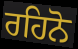
ਰਹਿਨੋ